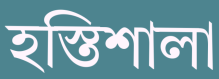
হস্তিশালা